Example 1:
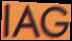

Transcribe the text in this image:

IAG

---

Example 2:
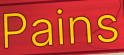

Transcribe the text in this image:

Pains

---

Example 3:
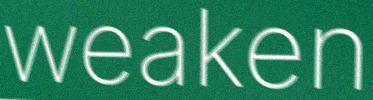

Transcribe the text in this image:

weaken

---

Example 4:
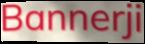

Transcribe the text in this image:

Bannerji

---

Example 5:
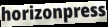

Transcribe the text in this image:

horizonpress